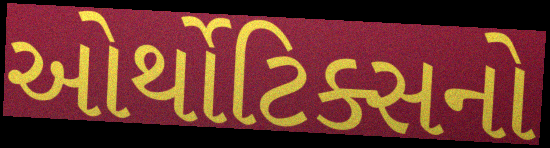
ઓર્થોટિક્સનો